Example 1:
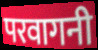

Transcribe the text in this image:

परवागनी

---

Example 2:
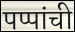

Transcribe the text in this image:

पप्पांची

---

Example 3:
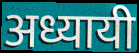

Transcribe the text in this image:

अध्यायी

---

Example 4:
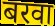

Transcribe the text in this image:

बरवा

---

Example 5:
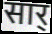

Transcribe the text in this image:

सार्